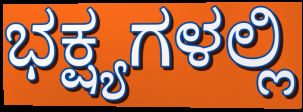
ಭಕ್ಷ್ಯಗಳಲ್ಲಿ